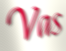
Vas